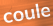
coule